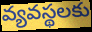
వ్యవస్థలకు